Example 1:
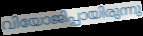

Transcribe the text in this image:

വിയോജിപ്പായിരുന്നു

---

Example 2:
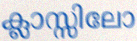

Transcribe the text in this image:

ക്ലാസ്സിലോ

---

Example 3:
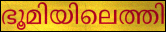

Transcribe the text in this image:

ഭൂമിയിലെത്തി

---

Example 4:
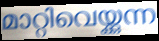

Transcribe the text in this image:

മാറ്റിവെയ്ക്കുന്ന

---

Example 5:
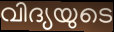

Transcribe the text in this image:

വിദ്യയുടെ